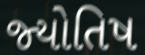
જ્‍યોતિષ